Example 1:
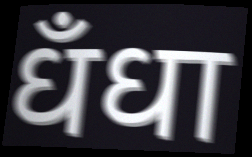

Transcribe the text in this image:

धँधा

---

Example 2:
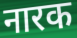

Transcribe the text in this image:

नारक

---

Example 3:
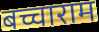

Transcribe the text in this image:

बच्चाराम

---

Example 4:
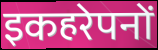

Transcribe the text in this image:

इकहरेपनों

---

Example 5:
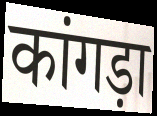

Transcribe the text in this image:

कांगड़ा